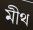
মীথ